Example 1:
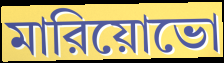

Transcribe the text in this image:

মারিয়োভো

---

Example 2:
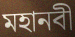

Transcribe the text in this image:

মহানবী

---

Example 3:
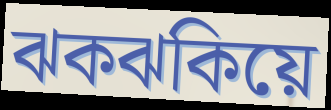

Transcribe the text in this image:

ঝকঝকিয়ে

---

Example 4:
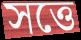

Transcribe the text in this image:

সত্তে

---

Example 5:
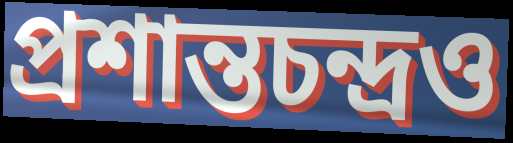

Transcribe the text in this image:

প্রশান্তচন্দ্রও